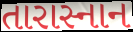
તારાસ્નાન